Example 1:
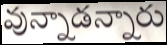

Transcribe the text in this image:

వున్నాడన్నారు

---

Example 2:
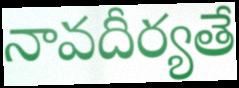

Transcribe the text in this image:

నావదీర్యతే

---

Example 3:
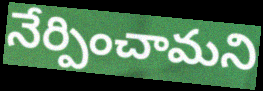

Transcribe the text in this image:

నేర్పించామని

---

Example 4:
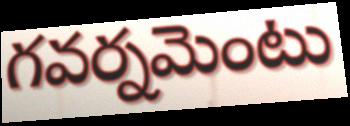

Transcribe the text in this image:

గవర్నమెంటు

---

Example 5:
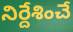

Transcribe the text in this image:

నిర్దేశించే